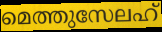
മെത്തുസേലഹ്